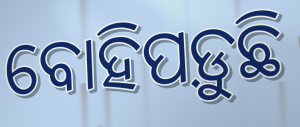
ବୋହିପଡ଼ୁଛି